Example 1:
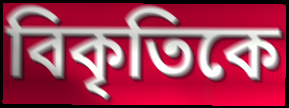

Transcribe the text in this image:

বিকৃতিকে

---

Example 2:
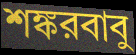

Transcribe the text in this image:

শঙ্করবাবু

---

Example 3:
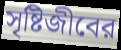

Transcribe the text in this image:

সৃষ্টিজীবের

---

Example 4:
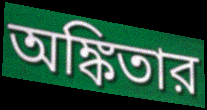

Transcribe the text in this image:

অঙ্কিতার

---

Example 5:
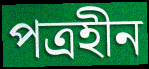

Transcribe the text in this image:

পত্রহীন